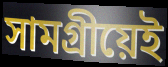
সামগ্ৰীয়েই